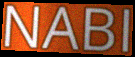
NABI